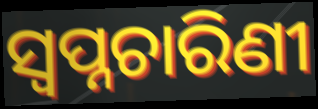
ସ୍ୱପ୍ନଚାରିଣୀ